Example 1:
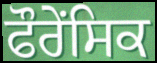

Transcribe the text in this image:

ਫੌਰੇਂਸਿਕ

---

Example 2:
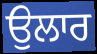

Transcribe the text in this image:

ਉਲਾਰ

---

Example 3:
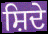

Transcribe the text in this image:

ਸ਼ਿਦੇ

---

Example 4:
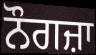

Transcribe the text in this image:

ਨੌਗਜ਼ਾ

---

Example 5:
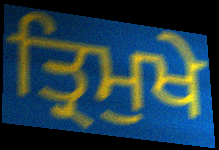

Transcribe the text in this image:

ਤ੍ਰਿਮੁਖੇ